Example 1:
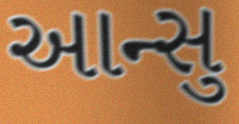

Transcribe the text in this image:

આન્સુ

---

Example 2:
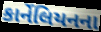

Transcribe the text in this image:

કાર્નેલિયનના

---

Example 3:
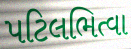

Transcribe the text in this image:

પટિલભિત્વા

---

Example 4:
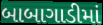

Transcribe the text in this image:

બાબાગાડીમાં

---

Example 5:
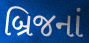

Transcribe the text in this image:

બ્રિજનાં